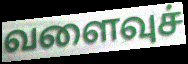
வளைவுச்